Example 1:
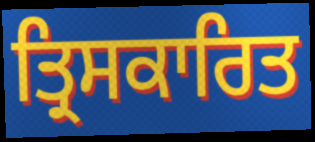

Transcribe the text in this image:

ਤ੍ਰਿਸਕਾਰਿਤ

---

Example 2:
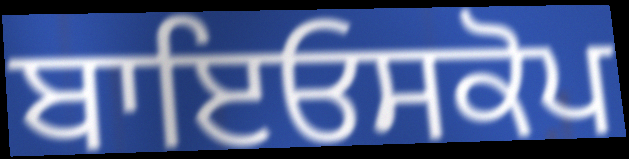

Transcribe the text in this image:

ਬਾਇਓਸਕੋਪ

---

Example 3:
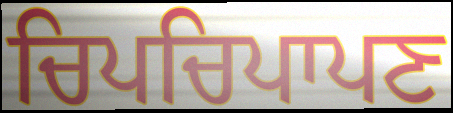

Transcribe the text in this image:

ਚਿਪਚਿਪਾਪਣ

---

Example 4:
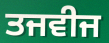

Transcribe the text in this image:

ਤਜਵੀਜ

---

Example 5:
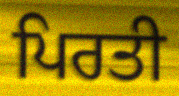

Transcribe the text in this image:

ਪਿਰਤੀ